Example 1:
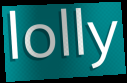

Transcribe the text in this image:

lolly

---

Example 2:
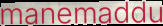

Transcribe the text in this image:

manemaddu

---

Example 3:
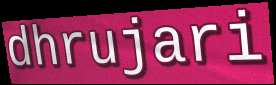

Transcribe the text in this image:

dhrujari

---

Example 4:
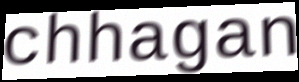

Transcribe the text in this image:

chhagan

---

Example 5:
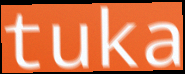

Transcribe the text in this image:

tuka